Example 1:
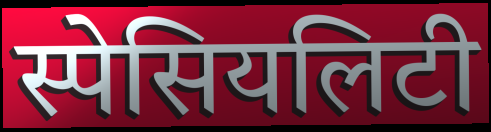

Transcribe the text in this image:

स्पेसियलिटी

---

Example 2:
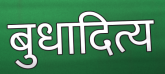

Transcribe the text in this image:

बुधादित्य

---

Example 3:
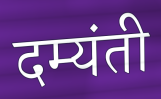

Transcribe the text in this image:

दम्यंती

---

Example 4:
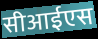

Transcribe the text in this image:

सीआईएस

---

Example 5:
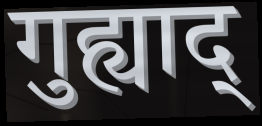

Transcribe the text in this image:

गुह्याद्